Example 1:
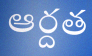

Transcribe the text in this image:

ఆర్దత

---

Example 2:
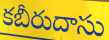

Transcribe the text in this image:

కబీరుదాసు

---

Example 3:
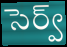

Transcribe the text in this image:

సెర్వ్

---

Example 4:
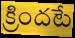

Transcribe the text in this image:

క్రిందటే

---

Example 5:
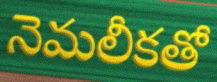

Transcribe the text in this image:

నెమలీకతో